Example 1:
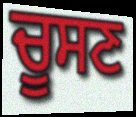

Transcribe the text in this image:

ਚੂਸਣ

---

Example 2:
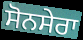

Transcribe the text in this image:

ਸੋਨਸੇਰਾ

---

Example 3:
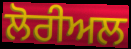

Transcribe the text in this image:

ਲੋਰੀਅਲ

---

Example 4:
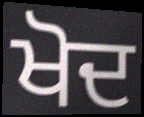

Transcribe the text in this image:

ਖੋਦ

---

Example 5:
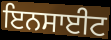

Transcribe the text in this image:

ਇਨਸਾਈਟ